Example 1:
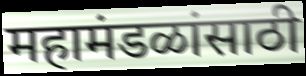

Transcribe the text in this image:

महामंडळांसाठी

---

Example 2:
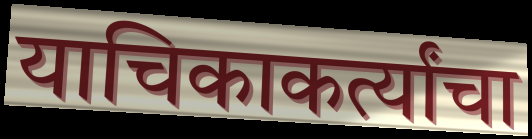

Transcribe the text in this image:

याचिकाकर्त्यांचा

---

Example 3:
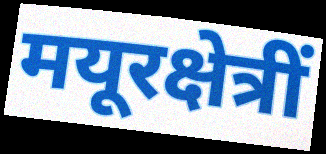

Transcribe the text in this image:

मयूरक्षेत्रीं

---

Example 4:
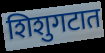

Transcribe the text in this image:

शिशुगटात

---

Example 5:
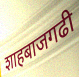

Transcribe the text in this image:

शाहबाजगढी